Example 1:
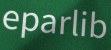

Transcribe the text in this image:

eparlib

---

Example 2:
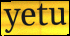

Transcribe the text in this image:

yetu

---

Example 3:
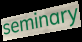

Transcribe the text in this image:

seminary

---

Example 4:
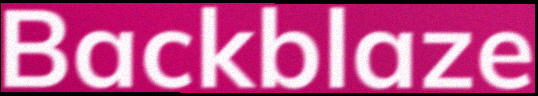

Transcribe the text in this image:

Backblaze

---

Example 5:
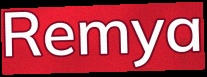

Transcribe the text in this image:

Remya